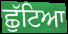
ਛੁੱਟਿਆ